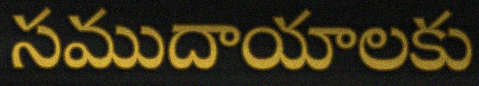
సముదాయాలకు